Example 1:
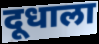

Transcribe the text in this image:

दूधाला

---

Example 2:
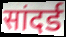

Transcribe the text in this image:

सांदर्ड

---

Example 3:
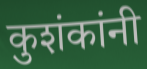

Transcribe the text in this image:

कुशंकांनी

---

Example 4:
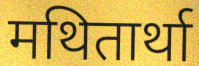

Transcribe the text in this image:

मथितार्था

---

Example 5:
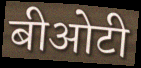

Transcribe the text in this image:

बीओटी